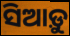
ସିଆଡ଼ୁ